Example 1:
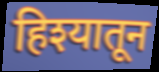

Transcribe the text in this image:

हिश्यातून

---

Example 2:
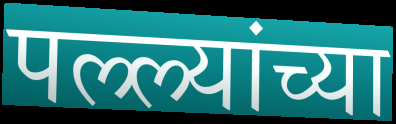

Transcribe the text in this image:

पल्ल्यांच्या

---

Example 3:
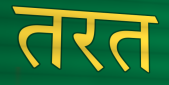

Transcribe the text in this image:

तरत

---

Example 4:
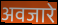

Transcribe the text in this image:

अवजारे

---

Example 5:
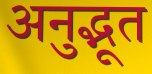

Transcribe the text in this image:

अनुद्भूत